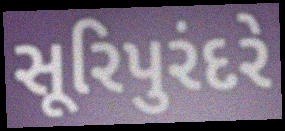
સૂરિપુરંદરે